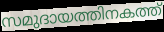
സമുദായത്തിനകത്ത്